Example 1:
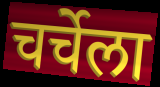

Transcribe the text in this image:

चर्चेला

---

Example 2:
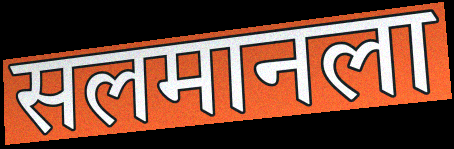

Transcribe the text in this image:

सलमानला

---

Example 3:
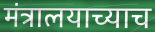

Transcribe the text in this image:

मंत्रालयाच्याच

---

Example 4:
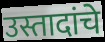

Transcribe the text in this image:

उस्तादांचे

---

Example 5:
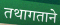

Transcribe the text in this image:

तथागताने